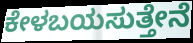
ಕೇಳಬಯಸುತ್ತೇನೆ